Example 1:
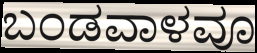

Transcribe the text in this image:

ಬಂಡವಾಳವೂ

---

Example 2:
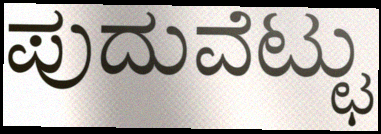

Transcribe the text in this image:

ಪುದುವೆಟ್ಟು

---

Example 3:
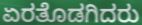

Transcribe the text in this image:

ಏರತೊಡಗಿದರು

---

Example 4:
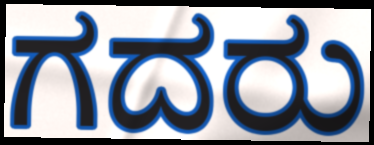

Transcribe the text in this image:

ಗದರು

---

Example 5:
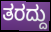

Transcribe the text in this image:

ತರದ್ದು